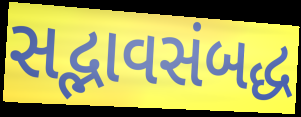
સદ્ભાવસંબદ્ધ